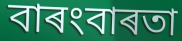
বাৰংবাৰতা